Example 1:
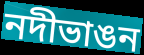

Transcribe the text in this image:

নদীভাঙন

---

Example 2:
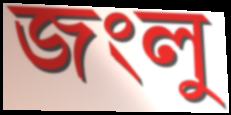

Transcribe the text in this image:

জংলু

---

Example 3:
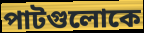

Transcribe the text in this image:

পাটগুলোকে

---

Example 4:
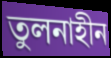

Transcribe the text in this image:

তুলনাহীন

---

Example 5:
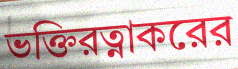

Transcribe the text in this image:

ভক্তিরত্নাকরের